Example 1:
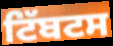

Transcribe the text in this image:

ਟਿੱਬਟਸ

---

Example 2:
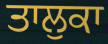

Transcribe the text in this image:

ਤਾਲੁਕਾ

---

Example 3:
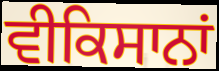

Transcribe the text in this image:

ਵੀਕਿਸਾਨਾਂ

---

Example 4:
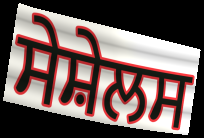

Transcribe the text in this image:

ਸੇਸ਼ੇਲਸ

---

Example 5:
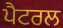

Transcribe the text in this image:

ਪੈਟਰਲ